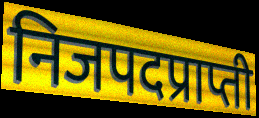
निजपदप्राप्ती